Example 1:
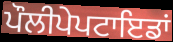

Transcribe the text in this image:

ਪੌਲੀਪੇਪਟਾਇਡਾਂ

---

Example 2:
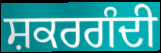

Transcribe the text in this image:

ਸ਼ਕਰਗੰਦੀ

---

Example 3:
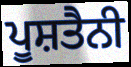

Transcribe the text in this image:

ਪੂਸ਼ਤੈਨੀ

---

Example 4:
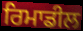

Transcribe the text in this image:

ਰਿਮਾਡੀਲ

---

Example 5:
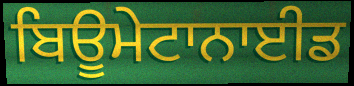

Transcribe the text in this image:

ਬਿਊਮੇਟਾਨਾਈਡ